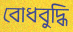
বোধবুদ্ধি